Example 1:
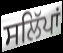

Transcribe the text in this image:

ਸਲਿੱਪਾਂ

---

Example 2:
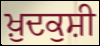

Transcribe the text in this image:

ਖ਼ੁਦਕੁਸ਼ੀ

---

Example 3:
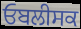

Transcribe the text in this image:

ਓਬਲੀਸਕ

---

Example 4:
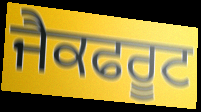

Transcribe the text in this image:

ਜੈਕਫਰੂਟ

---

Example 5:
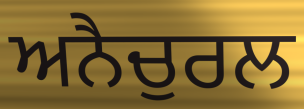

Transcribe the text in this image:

ਅਨੈਚੁਰਲ